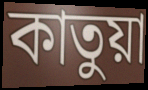
কাতুয়া